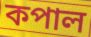
কপাল